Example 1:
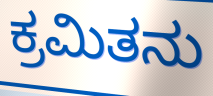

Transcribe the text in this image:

ಕ್ರಮಿತನು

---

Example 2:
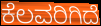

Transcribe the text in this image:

ಕೆಲವರಿಗಿದೆ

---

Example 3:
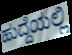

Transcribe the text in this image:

ಹುದ್ದೆಯಲ್ಲಿ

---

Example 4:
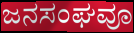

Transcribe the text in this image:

ಜನಸಂಘವೂ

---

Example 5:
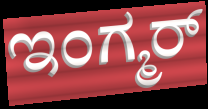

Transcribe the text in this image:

ಇಂಗ್ಮರ್